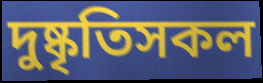
দুষ্কৃতিসকল